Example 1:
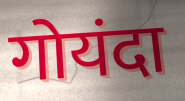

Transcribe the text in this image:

गोयंदा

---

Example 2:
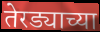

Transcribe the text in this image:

तेरड्याच्या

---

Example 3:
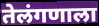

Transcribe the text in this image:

तेलंगणाला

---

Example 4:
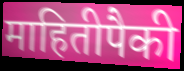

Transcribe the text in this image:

माहितीपैकी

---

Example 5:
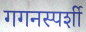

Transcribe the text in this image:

गगनस्पर्शी